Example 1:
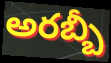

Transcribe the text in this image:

అరబ్బీ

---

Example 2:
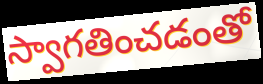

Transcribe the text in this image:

స్వాగతించడంతో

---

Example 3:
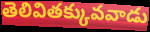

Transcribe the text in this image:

తెలివితక్కువవాడు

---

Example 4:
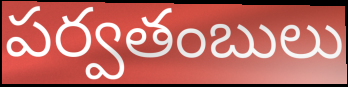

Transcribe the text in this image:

పర్వతంబులు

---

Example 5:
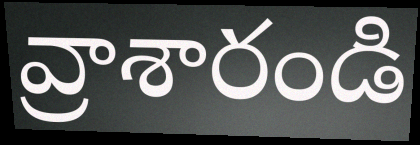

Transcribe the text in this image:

వ్రాశారండి